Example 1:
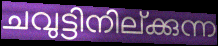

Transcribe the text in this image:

ചവുട്ടിനില്ക്കുന്ന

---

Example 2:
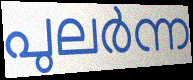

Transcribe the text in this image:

പുലർന്ന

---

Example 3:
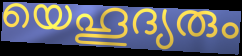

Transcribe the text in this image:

യെഹൂദ്യരും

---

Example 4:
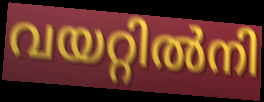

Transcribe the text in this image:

വയറ്റിൽനി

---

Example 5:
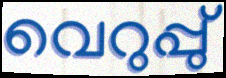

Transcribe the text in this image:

വെറുപ്പു്